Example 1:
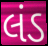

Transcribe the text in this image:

લંડ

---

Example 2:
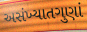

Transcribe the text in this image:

અસંખ્યાતગુણાં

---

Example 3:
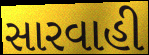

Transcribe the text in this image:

સારવાહી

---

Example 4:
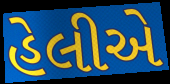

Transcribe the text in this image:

હેલીએ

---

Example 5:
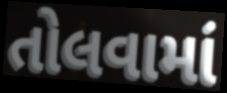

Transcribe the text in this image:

તોલવામાં